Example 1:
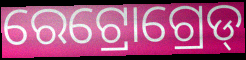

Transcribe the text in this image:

ରେଟ୍ରୋଗ୍ରେଡ୍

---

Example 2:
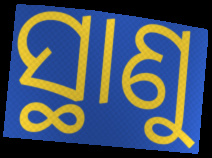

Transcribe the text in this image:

ସ୍ଥାଣୁ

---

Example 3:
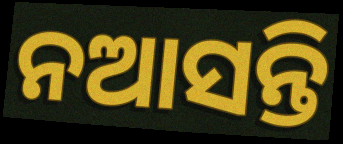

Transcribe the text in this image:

ନଆସନ୍ତି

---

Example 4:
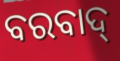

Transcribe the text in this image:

ବରବାଦ୍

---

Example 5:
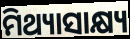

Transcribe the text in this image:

ମିଥ୍ୟାସାକ୍ଷ୍ୟ